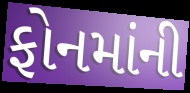
ફોનમાંની